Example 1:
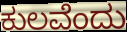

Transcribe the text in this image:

ಕುಲವೆಂದು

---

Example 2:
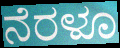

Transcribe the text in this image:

ನೆರಳೂ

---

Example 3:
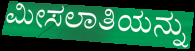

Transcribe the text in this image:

ಮೀಸಲಾತಿಯನ್ನು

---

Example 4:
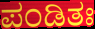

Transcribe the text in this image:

ಪಂಡಿತಃ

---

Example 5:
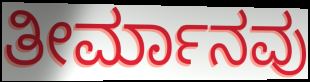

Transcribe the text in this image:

ತೀರ್ಮಾನವು